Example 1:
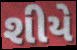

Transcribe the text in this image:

શીયે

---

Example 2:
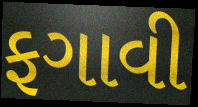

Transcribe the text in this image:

ફગાવી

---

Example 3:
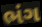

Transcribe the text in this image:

ભંગ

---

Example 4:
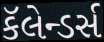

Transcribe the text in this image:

કૅલેન્ડર્સ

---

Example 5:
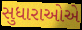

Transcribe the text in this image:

સુધારાઓએ